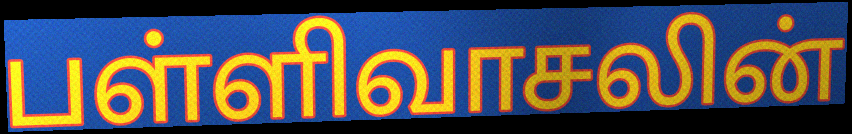
பள்ளிவாசலின்